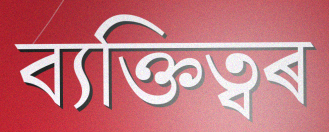
ব্যক্তিত্বৰ